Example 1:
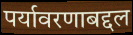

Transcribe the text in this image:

पर्यावरणाबद्दल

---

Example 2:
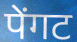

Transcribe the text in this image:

पेंगट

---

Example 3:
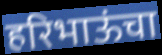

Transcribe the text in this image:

हरिभाऊंचा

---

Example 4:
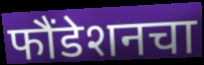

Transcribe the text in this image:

फौंडेशनचा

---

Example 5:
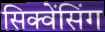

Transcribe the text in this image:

सिक्वेंसिंग